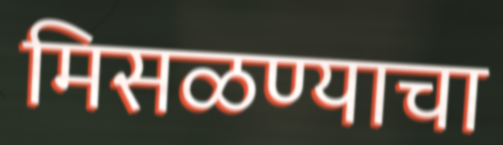
मिसळण्याचा